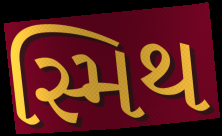
સ્મિથ